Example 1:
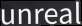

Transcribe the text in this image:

unreal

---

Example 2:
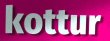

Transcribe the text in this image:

kottur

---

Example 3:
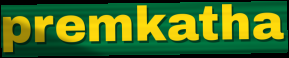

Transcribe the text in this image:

premkatha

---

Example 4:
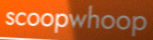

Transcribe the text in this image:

scoopwhoop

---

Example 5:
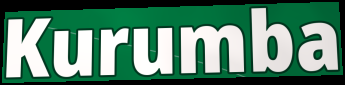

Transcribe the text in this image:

Kurumba